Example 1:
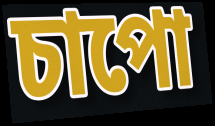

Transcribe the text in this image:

চাপো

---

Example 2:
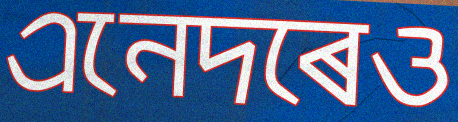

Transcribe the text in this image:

এনেদৰেও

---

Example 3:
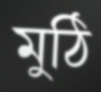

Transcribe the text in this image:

মুঠি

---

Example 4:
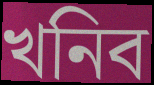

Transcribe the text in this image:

খনিব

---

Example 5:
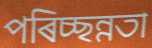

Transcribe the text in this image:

পৰিচ্ছন্নতা